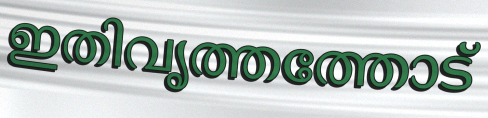
ഇതിവൃത്തത്തോട്